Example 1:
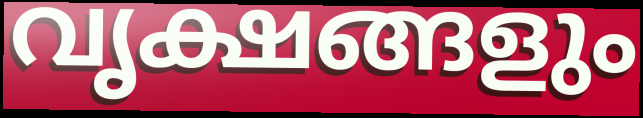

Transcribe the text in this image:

വൃക്ഷങ്ങളും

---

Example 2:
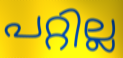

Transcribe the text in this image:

പറ്റില്ല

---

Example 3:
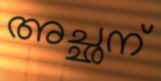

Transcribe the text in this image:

അച്ഛന്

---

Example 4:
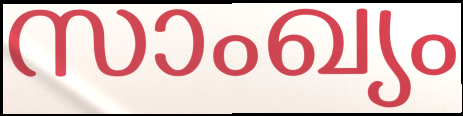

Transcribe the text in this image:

സാംഖ്യം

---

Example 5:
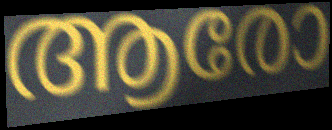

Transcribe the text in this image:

ആരോ